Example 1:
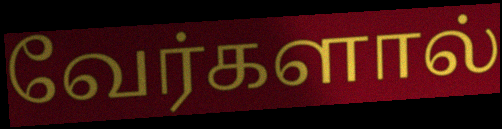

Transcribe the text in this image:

வேர்களால்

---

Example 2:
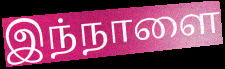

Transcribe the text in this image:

இந்நாளை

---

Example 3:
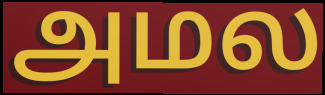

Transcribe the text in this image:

அமல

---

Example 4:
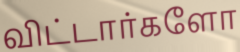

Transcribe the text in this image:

விட்டார்களோ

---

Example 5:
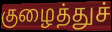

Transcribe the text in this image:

குழைத்துச்